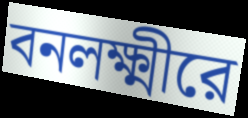
বনলক্ষ্মীরে